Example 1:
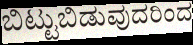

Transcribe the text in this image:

ಬಿಟ್ಟುಬಿಡುವುದರಿಂದ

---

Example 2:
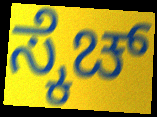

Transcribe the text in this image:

ಸ್ಕೆಚ್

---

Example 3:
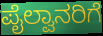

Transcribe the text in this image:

ಪೈಲ್ವಾನರಿಗೆ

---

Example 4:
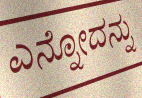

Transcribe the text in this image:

ಎನ್ನೋದನ್ನು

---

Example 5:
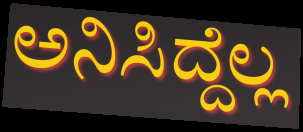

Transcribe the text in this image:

ಅನಿಸಿದ್ದೆಲ್ಲ